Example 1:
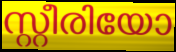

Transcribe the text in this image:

സ്റ്റീരിയോ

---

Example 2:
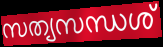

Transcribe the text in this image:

സത്യസന്ധശ്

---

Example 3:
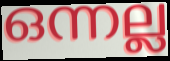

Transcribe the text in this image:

ഒന്നല്ല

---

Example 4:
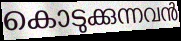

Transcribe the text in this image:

കൊടുക്കുന്നവൻ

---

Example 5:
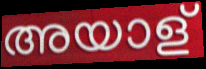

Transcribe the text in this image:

അയാള്